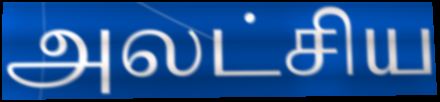
அலட்சிய